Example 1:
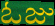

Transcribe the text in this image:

ఓజు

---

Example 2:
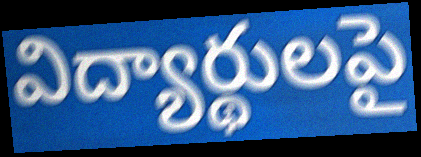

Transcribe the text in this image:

విద్యార్థులపై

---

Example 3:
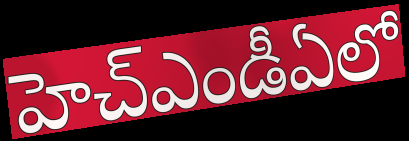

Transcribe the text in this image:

హెచ్ఎండీఏలో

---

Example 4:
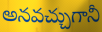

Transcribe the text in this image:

అనవచ్చుగానీ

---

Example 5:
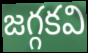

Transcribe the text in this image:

జగ్గకవి